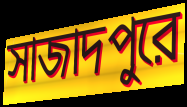
সাজাদপুরে